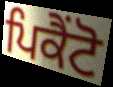
ਪਿਕੈਂਟੋ